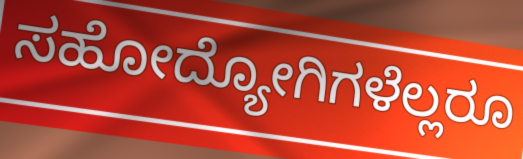
ಸಹೋದ್ಯೋಗಿಗಳೆಲ್ಲರೂ